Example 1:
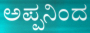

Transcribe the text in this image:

ಅಪ್ಪನಿಂದ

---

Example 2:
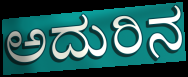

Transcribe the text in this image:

ಅದುರಿನ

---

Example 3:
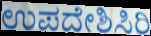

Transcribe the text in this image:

ಉಪದೇಶಿಸಿರಿ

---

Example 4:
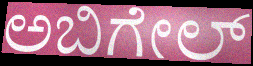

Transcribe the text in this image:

ಅಬಿಗೇಲ್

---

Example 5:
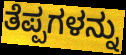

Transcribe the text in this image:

ತೆಪ್ಪಗಳನ್ನು